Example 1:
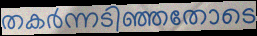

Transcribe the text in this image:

തകർന്നടിഞ്ഞതോടെ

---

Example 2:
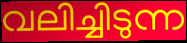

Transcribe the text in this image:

വലിച്ചിടുന്ന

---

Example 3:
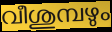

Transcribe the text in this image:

വീശുമ്പഴും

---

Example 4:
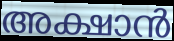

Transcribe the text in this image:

അക്ഷാൻ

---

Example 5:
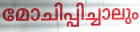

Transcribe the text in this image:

മോചിപ്പിച്ചാലും